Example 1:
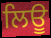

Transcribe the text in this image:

ਲਿਊ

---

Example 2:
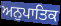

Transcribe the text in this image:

ਅਨੁਪਾਤਿਕ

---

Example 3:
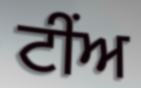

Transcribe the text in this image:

ਟੀਂਅ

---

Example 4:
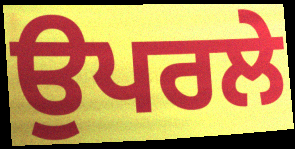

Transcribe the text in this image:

ਉਪਰਲੇ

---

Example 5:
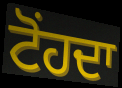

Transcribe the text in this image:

ਟੋਂਹਦਾ